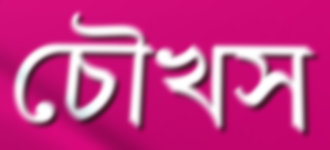
চৌখস